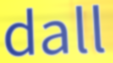
dall